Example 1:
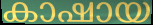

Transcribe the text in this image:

കാഷായ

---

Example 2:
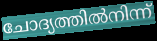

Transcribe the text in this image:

ചോദ്യത്തിൽനിന്ന്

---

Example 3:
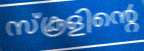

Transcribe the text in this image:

സ്കൂളിന്റെ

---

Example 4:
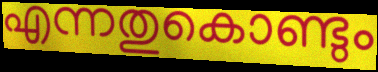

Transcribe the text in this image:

എന്നതുകൊണ്ടും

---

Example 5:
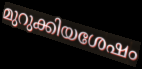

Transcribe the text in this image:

മുറുക്കിയശേഷം